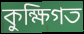
কুক্ষিগত